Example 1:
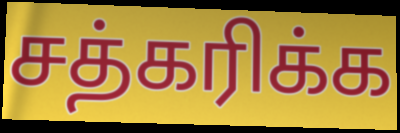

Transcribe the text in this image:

சத்கரிக்க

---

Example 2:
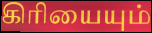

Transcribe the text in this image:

கிரியையும்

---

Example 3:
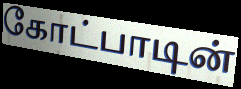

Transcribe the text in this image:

கோட்பாடின்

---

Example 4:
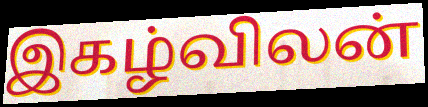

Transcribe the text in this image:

இகழ்விலன்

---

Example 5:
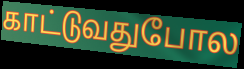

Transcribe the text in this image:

காட்டுவதுபோல